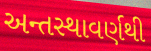
અન્તસ્થાવર્ણથી